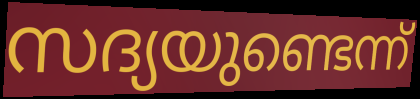
സദ്യയുണ്ടെന്ന്